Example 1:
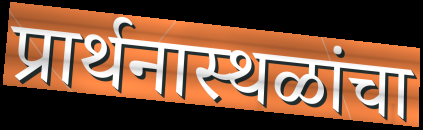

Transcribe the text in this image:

प्रार्थनास्थळांचा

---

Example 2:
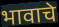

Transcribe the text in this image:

भावाचे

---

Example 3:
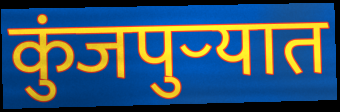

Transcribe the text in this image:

कुंजपुऱ्यात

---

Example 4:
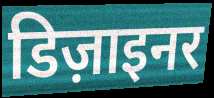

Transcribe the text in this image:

डिज़ाइनर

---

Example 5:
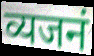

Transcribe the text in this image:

व्यजनं